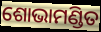
ଶୋଭାମଣ୍ଡିତ